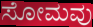
ಸೋಮವು